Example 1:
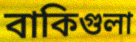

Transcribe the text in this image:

বাকিগুলা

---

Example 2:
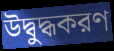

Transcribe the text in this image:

উদ্বুদ্ধকরণ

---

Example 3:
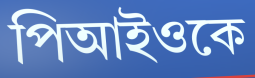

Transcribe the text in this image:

পিআইওকে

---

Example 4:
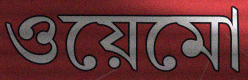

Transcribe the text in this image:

ওয়েমো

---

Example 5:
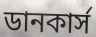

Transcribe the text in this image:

ডানকার্স